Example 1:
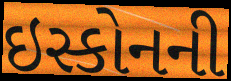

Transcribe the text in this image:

ઇસ્કોનની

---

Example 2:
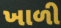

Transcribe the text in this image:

ખાળી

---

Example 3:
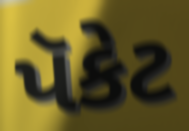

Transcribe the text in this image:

પૅકેટ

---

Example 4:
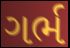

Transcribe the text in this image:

ગર્ભ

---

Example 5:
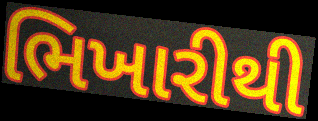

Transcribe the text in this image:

ભિખારીથી